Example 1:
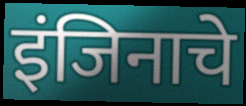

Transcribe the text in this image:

इंजिनाचे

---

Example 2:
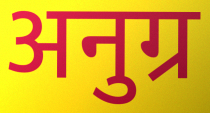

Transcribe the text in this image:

अनुग्र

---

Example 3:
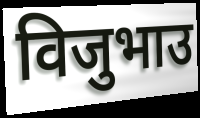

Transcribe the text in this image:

विजुभाउ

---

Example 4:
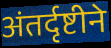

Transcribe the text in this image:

अंतर्दृष्टीने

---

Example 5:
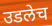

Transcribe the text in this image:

उडलेच